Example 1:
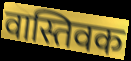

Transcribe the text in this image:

वास्तिवक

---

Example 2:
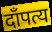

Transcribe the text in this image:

दाँपत्य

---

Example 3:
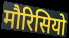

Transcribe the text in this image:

मौरिसियो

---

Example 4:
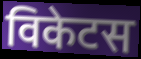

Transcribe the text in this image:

विकेटस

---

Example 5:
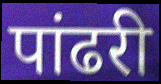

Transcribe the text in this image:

पांढरी